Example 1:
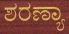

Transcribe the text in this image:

ಶರಣ್ಯಾ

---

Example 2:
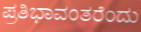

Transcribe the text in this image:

ಪ್ರತಿಭಾವಂತರೆಂದು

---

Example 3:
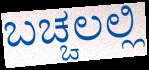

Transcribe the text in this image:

ಬಚ್ಚಲಲ್ಲಿ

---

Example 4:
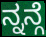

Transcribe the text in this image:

ನ್ನನ್ಗೆ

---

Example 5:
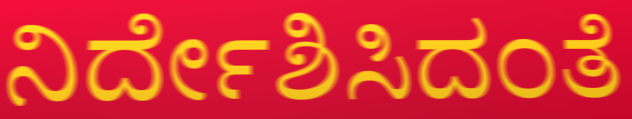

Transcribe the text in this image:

ನಿರ್ದೇಶಿಸಿದಂತೆ